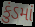
કુંડમાં